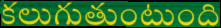
కలుగుతుంటుంది